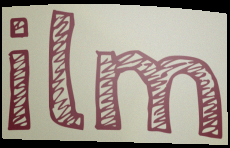
ilm